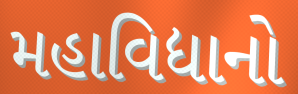
મહાવિદ્યાનો